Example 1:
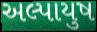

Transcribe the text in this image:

અલ્પાયુષ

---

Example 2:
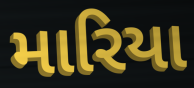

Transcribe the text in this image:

મારિયા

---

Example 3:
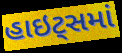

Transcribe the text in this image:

હાઇટ્સમાં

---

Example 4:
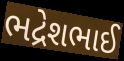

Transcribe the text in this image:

ભદ્રેશભાઈ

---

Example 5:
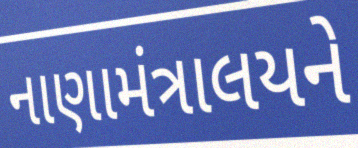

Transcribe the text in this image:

નાણામંત્રાલયને